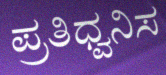
ಪ್ರತಿಧ್ವನಿಸ